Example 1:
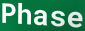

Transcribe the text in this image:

Phase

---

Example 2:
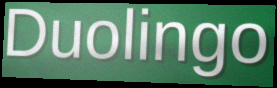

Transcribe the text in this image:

Duolingo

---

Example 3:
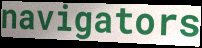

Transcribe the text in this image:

navigators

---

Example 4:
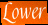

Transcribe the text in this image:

Lower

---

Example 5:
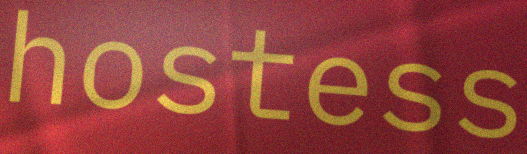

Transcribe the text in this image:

hostess